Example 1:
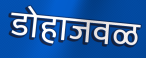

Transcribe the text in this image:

डोहाजवळ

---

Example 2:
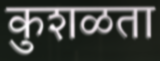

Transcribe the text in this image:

कुशळता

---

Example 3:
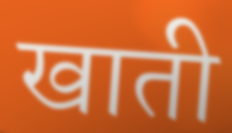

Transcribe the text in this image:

खाती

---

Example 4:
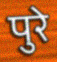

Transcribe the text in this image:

पुरे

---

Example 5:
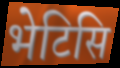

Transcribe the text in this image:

भेटिसि